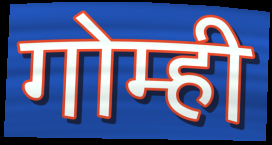
गोम्ही